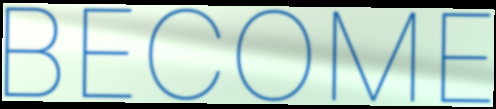
BECOME